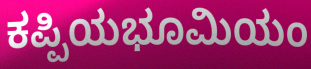
ಕಪ್ಪಿಯಭೂಮಿಯಂ